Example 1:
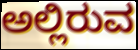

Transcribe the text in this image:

ಅಲ್ಲಿರುವ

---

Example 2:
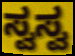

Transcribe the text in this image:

ಸ್ವಸ್ವ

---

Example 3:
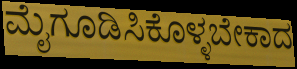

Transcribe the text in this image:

ಮೈಗೂಡಿಸಿಕೊಳ್ಳಬೇಕಾದ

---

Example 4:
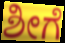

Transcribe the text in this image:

ಶೀಗೆ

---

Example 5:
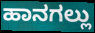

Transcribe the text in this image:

ಹಾನಗಲ್ಲು